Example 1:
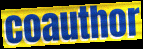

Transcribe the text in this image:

coauthor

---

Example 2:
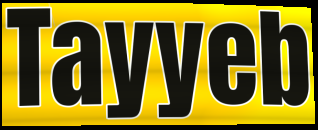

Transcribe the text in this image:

Tayyeb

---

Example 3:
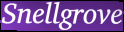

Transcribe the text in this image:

Snellgrove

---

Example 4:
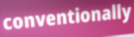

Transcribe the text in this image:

conventionally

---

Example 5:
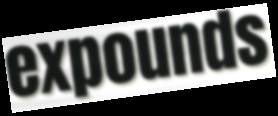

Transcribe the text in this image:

expounds